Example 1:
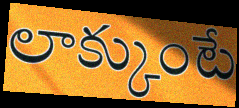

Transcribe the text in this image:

లాక్కుంటే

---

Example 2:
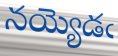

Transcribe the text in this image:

నయ్యెడఁ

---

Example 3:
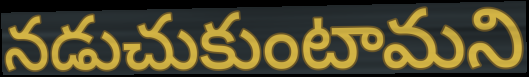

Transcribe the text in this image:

నడుచుకుంటామని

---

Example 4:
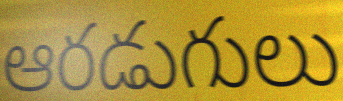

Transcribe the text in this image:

ఆరడుగులు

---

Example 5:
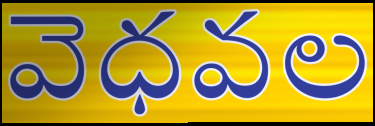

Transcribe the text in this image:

వెధవల